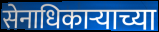
सेनाधिकाऱ्याच्या